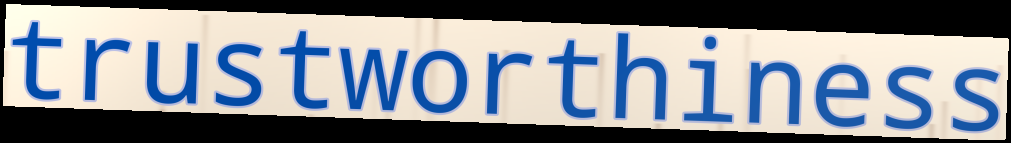
trustworthiness